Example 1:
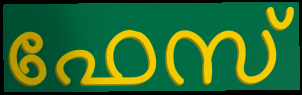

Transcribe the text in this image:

ഫേസ്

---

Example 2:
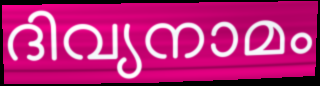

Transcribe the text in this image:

ദിവ്യനാമം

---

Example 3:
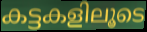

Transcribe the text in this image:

കട്ടകളിലൂടെ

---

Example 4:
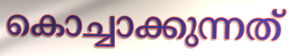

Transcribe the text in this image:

കൊച്ചാക്കുന്നത്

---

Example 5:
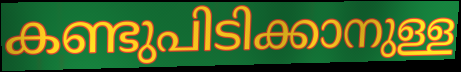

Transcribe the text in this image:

കണ്ടുപിടിക്കാനുള്ള